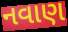
નવાણ